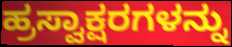
ಹ್ರಸ್ವಾಕ್ಷರಗಳನ್ನು